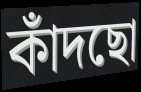
কাঁদছো